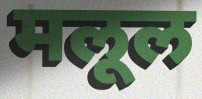
मलूल